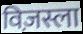
विज़स्ला